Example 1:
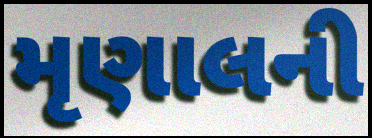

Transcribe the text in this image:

મૃણાલની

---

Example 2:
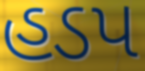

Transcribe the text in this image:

હડપ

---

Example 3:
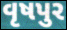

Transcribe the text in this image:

વૃષપુર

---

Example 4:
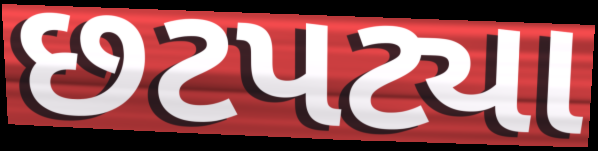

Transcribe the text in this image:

છટપટ્યા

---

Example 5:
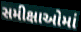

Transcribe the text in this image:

સમીક્ષાઓમાં